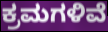
ಕ್ರಮಗಳಿವೆ